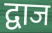
द्वाज